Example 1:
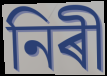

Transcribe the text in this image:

নিৰী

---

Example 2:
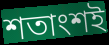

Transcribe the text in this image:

শতাংশই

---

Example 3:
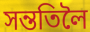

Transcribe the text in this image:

সন্ততিলৈ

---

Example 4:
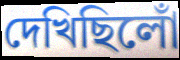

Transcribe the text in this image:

দেখিছিলোঁ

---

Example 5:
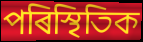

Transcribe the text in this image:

পৰিস্থিতিক